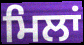
ਮਿਲਾਂ